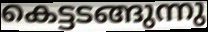
കെട്ടടങ്ങുന്നു